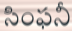
సింఫనీ